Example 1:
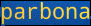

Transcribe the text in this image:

parbona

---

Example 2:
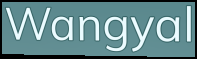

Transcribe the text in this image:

Wangyal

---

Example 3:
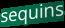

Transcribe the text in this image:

sequins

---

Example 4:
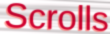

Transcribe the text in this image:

Scrolls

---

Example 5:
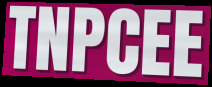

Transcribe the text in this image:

TNPCEE